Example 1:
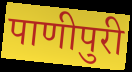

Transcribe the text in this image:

पाणीपुरी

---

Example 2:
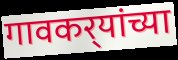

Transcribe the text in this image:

गावकर्‍यांच्या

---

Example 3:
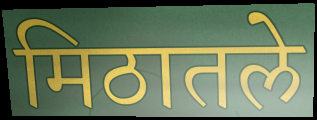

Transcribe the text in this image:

मिठातले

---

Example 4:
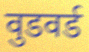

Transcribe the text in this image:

वुडवर्ड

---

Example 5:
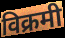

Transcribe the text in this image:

विक्रमी